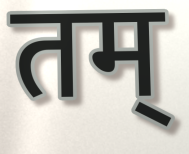
तम्